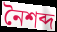
নৈশব্দ